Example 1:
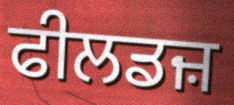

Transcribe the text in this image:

ਫੀਲਡਜ਼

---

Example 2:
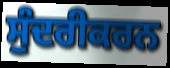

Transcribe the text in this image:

ਸੁੰਦਰੀਕਰਨ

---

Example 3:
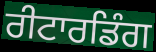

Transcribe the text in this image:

ਰੀਟਾਰਡਿੰਗ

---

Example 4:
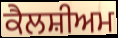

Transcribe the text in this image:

ਕੈਲਸ਼ੀਅਮ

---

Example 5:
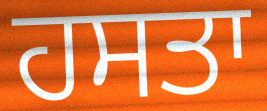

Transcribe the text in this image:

ਹਸਤਾ